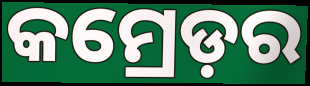
କମ୍ରେଡ଼ର